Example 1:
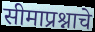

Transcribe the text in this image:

सीमाप्रश्नाचे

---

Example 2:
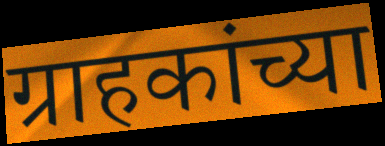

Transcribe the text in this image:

ग्राहकांच्या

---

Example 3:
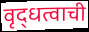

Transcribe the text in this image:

वृद्धत्वाची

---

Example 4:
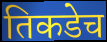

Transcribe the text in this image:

तिकडेच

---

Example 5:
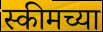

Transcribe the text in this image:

स्कीमच्या